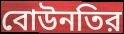
বোউনতির